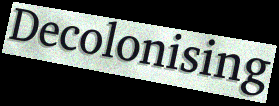
Decolonising